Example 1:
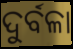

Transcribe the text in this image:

ଦୁର୍ବଳା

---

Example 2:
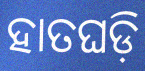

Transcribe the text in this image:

ହାତଘଡ଼ି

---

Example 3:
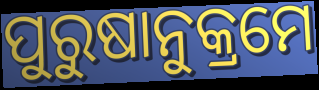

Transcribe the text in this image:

ପୁରୁଷାନୁକ୍ରମେ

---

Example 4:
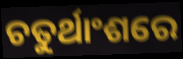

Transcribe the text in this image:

ଚତୁର୍ଥାଂଶରେ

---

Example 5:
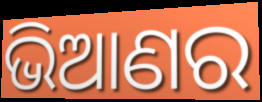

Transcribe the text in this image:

ଭିଆଣର